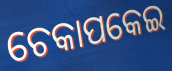
ଚେକାପକେଇ